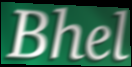
Bhel